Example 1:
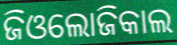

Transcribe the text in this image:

ଜିଓଲୋଜିକାଲ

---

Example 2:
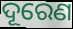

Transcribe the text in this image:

ଦୂରେଣ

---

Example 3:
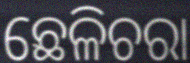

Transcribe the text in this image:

ଛେଳିଚରା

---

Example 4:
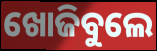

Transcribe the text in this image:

ଖୋଜିବୁଲେ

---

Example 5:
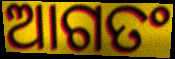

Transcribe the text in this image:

ଆଗତଂ